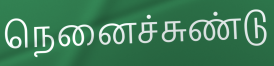
நெனைச்சுண்டு